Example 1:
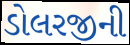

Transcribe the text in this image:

ડોલરજીની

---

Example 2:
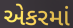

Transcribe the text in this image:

એકરમાં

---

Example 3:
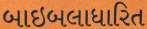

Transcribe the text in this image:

બાઇબલાધારિત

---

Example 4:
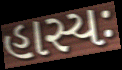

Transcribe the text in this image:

હાસ્યઃ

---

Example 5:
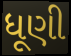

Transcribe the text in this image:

ધૂણી